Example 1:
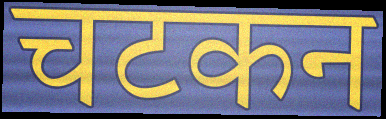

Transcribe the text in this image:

चटकन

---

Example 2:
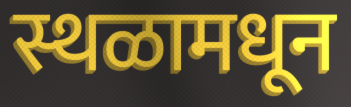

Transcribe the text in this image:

स्थळामधून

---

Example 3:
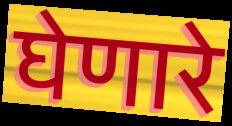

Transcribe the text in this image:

घेणारे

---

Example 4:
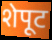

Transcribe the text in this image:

शेपूट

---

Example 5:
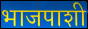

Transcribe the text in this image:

भाजपाशी